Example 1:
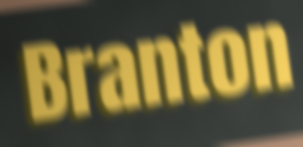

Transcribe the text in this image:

Branton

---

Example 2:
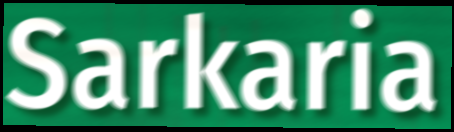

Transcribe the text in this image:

Sarkaria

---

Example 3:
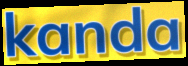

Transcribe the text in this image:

kanda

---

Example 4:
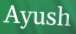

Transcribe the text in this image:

Ayush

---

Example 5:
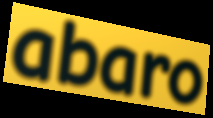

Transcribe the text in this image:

abaro